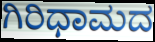
ಗಿರಿಧಾಮದ